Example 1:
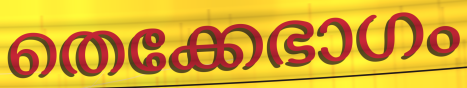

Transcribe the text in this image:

തെക്കേഭാഗം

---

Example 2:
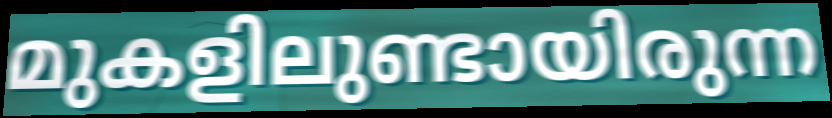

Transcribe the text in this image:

മുകളിലുണ്ടായിരുന്ന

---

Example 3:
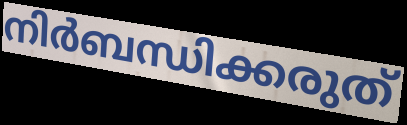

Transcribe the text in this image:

നിർബന്ധിക്കരുത്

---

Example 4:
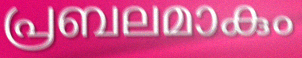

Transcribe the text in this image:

പ്രബലമാകും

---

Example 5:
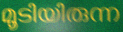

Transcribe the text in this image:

മൂടിയിരുന്ന